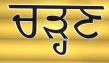
ਚੜ੍ਹਣ